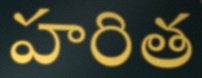
హరిత